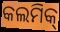
କଲମିକ୍